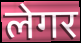
लेगर